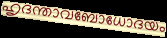
ഹൃദന്താവബോധോദയം